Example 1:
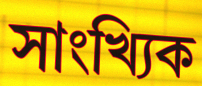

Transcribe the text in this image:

সাংখ্যিক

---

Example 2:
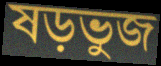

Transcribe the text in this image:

ষড়ভুজ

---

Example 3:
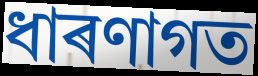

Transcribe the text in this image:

ধাৰণাগত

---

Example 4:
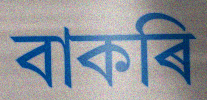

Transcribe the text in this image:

বাকৰি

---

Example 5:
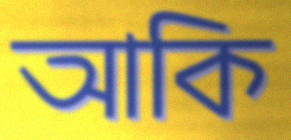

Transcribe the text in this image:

আকি